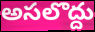
అసలొద్దు